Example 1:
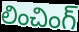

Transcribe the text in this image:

లించింగ్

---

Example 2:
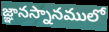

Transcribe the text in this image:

జ్ఞానస్నానములో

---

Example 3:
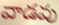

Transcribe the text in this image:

వాడవు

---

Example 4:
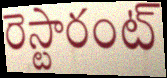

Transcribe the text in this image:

రెస్టారంట్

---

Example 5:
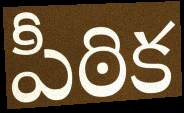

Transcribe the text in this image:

పీఠిక